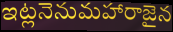
ఇట్లనెనుమహారాజైన